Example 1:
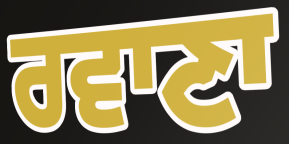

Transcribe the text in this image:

ਰਵਾਣਾ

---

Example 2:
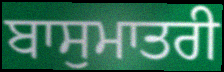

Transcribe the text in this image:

ਬਾਸੁਮਾਤਰੀ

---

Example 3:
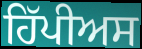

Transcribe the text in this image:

ਹਿੱਪੀਅਸ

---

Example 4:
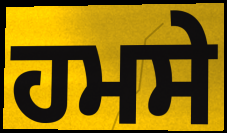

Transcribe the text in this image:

ਹਮਸੇ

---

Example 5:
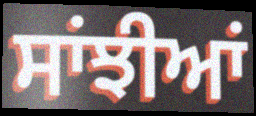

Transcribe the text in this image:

ਸਾਂਝੀਆਂ